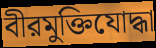
বীরমুক্তিযোদ্ধা